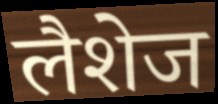
लैशेज